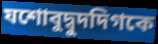
যশোবুদ্বুদদিগকে